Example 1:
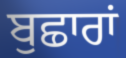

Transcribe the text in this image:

ਬੁਛਾਰਾਂ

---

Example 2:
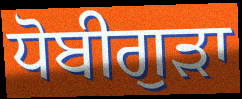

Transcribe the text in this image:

ਧੋਬੀਗੁੜਾ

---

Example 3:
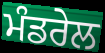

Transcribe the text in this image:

ਮੰਡਰੇਲ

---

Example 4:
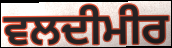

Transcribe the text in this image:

ਵਲਦੀਮੀਰ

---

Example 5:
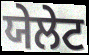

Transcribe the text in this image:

ਯੇਲੇਟ